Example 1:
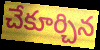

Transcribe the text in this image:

చేకూర్చిన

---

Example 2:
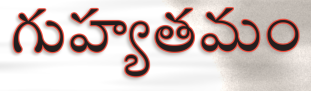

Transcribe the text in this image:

గుహ్యతమం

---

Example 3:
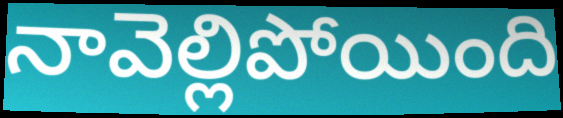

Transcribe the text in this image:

నావెల్లిపోయింది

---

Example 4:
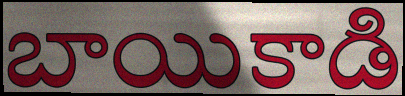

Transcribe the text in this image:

బాయికాడి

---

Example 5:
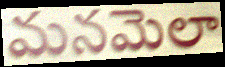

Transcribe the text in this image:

మనమెలా